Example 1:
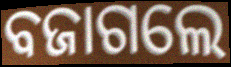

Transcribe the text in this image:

ବଜାଗଲେ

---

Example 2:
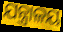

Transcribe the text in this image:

ଯନ୍ତ୍ରାଳୟ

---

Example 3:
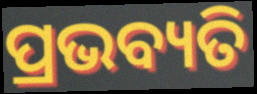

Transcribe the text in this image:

ପ୍ରଭବ୍ୟତି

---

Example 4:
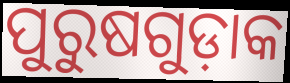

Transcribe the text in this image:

ପୁରୁଷଗୁଡ଼ାକ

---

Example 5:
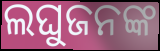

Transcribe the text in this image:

ଲଘୁଜନଙ୍କ